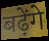
बढ़ेंगे